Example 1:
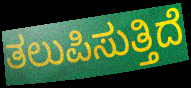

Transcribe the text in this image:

ತಲುಪಿಸುತ್ತಿದೆ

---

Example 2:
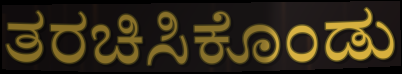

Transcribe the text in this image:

ತರಚಿಸಿಕೊಂಡು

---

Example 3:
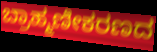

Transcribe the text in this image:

ಬ್ರಾಹ್ಮಣೀಕರಣದ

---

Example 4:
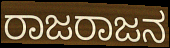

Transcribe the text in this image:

ರಾಜರಾಜನ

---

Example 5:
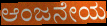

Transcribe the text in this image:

ಆಂಜನೇಯ